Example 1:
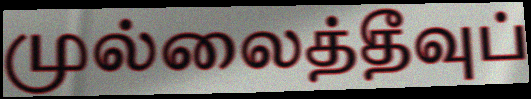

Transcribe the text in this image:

முல்லைத்தீவுப்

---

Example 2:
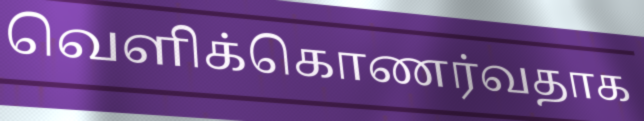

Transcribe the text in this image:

வெளிக்கொணர்வதாக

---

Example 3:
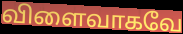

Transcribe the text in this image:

விளைவாகவே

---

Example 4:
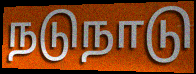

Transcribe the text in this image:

நடுநாடு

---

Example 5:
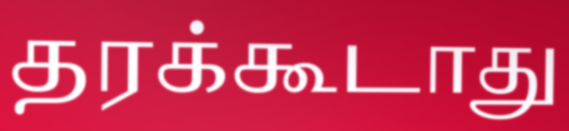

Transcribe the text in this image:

தரக்கூடாது